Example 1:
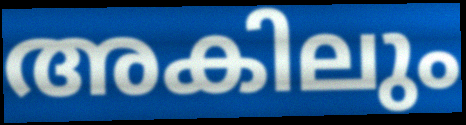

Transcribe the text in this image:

അകിലും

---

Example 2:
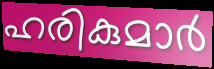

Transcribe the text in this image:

ഹരികുമാർ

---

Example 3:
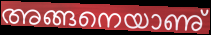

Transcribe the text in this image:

അങ്ങനെയാണു്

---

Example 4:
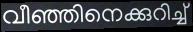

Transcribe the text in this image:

വീഞ്ഞിനെക്കുറിച്ച്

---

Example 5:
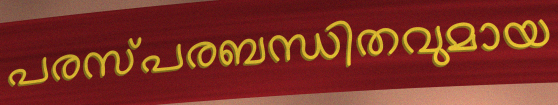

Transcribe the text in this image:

പരസ്പരബന്ധിതവുമായ